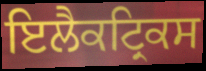
ਇਲੈਕਟ੍ਰਿਕਸ